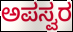
ಅಪಸ್ವರ